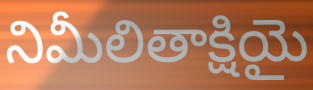
నిమీలితాక్షియై